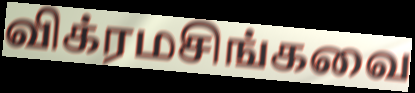
விக்ரமசிங்கவை